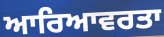
ਆਰਿਆਵਰਤਾ